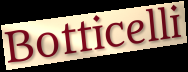
Botticelli